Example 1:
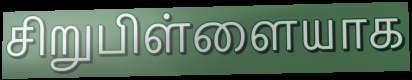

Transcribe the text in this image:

சிறுபிள்ளையாக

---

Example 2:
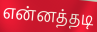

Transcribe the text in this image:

என்னத்தடி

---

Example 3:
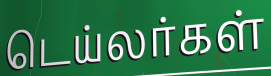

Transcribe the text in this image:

டெய்லர்கள்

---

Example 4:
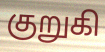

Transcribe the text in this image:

குறுகி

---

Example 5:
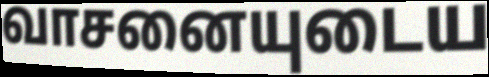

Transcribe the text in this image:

வாசனையுடைய